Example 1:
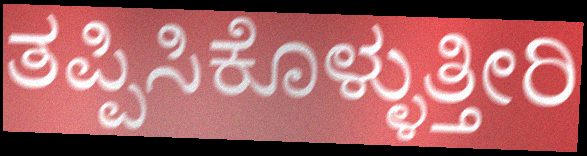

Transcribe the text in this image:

ತಪ್ಪಿಸಿಕೊಳ್ಳುತ್ತೀರಿ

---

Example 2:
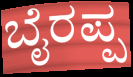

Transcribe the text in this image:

ಬೈರಪ್ಪ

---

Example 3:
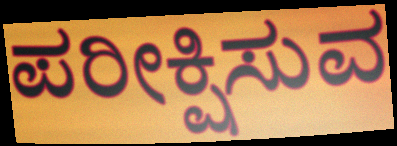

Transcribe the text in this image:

ಪರೀಕ್ಷಿಸುವ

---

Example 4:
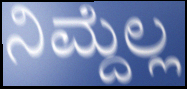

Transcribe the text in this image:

ನಿಮ್ದೆಲ್ಲ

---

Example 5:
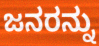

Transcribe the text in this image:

ಜನರನ್ನು